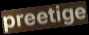
preetige